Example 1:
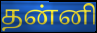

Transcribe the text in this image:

தன்னி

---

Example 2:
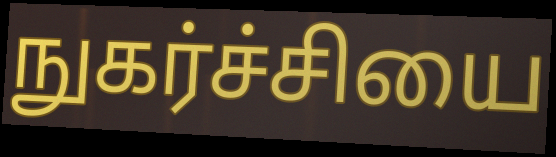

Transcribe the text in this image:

நுகர்ச்சியை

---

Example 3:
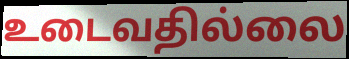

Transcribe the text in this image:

உடைவதில்லை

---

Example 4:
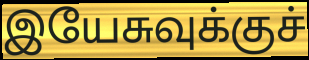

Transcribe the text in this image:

இயேசுவுக்குச்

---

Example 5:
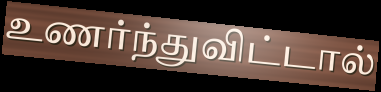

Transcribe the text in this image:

உணர்ந்துவிட்டால்